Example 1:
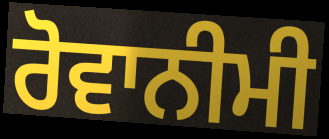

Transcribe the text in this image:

ਰੋਵਾਨੀਮੀ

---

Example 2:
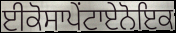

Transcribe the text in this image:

ਈਕੋਸਾਪੇਂਟਾਏਨੋਇਕ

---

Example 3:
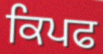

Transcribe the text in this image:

ਕਿਪਫ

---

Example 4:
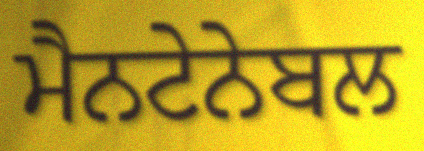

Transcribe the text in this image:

ਮੈਨਟੇਨੇਬਲ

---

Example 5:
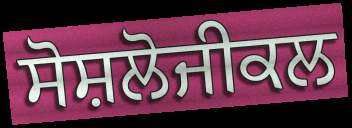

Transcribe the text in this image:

ਸੋਸ਼ਲੋਜੀਕਲ